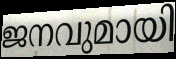
ജനവുമായി